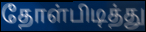
தோள்பிடித்து